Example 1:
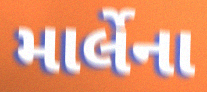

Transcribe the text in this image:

માર્લેના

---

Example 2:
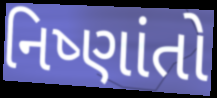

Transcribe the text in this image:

નિષ્ણાંતો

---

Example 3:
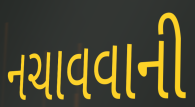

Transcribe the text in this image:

નચાવવાની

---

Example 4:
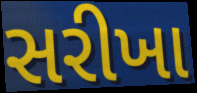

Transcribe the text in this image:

સરીખા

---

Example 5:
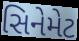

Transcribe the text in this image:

સિનેમેટ